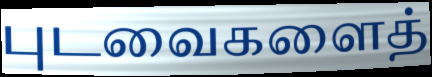
புடவைகளைத்